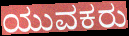
ಯುವಕರು